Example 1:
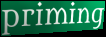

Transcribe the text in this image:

priming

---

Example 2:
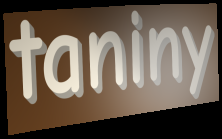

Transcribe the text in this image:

taniny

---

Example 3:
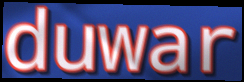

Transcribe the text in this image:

duwar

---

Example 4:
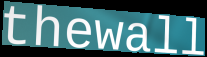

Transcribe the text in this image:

thewall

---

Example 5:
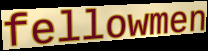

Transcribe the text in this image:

fellowmen